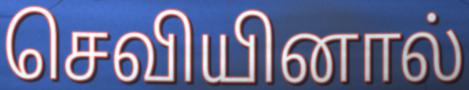
செவியினால்